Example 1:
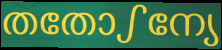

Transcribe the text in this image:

തതോഽന്യേ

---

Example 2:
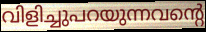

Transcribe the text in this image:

വിളിച്ചുപറയുന്നവന്റെ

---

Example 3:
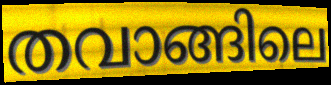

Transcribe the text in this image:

തവാങ്ങിലെ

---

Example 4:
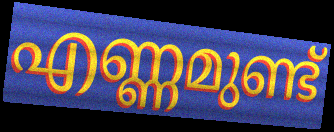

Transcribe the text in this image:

എണ്ണമുണ്ട്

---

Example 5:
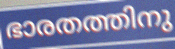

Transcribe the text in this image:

ഭാരതത്തിനു